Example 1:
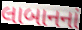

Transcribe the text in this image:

લાબાનનાં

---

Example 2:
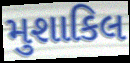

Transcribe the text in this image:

મુશાકિલ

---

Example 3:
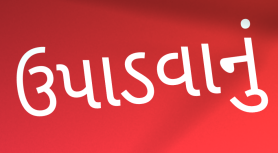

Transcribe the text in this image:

ઉપાડવાનું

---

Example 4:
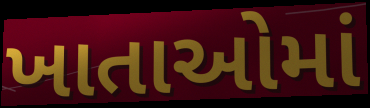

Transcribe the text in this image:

ખાતાઓમાં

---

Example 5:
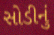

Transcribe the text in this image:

સોડીનું